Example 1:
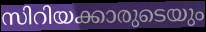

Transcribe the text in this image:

സിറിയക്കാരുടെയും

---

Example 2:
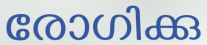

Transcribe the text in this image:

രോഗിക്കു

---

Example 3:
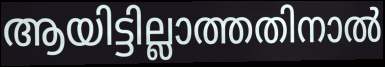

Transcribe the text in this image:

ആയിട്ടില്ലാത്തതിനാൽ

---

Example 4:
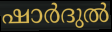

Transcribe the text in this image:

ഷാർദുൽ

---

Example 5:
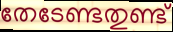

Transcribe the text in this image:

തേടേണ്ടതുണ്ട്